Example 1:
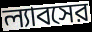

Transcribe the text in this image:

ল্যাবসের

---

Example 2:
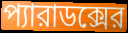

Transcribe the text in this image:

প্যারাডক্সের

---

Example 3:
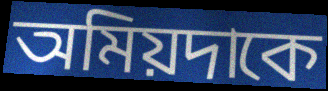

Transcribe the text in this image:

অমিয়দাকে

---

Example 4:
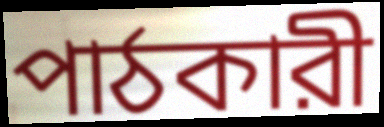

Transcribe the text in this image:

পাঠকারী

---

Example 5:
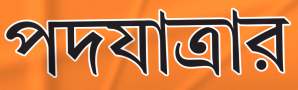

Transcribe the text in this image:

পদযাত্রার